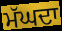
ਮੱਘਦਾ